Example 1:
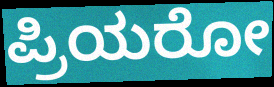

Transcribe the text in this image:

ಪ್ರಿಯರೋ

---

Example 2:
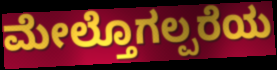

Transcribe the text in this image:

ಮೇಲ್ತೊಗಲ್ಪರೆಯ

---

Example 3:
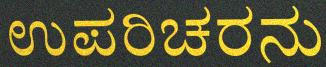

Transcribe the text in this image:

ಉಪರಿಚರನು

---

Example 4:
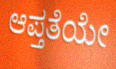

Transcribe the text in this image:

ಆಪ್ತತೆಯೇ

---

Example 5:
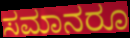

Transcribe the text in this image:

ಸಮಾನರೂ